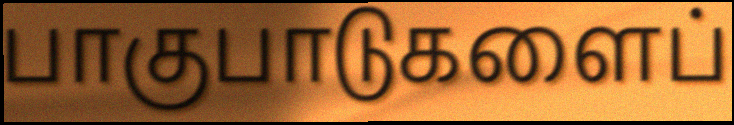
பாகுபாடுகளைப்